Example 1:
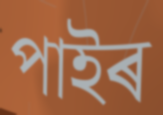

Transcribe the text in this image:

পাইৰ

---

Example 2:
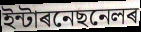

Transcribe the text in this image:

ইন্টাৰনেছনেলৰ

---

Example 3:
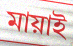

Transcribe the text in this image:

মায়াই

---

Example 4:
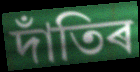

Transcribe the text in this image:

দাঁতিৰ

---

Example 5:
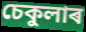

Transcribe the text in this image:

চেকুলাৰ